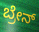
ಬ್ರೇನ್